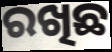
ରଖିଛ